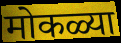
मोकळ्या